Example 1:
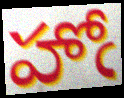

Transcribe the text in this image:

హోఁ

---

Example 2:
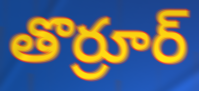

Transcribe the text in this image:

తొర్రూర్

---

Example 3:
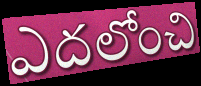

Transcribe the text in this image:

ఎదలోంచి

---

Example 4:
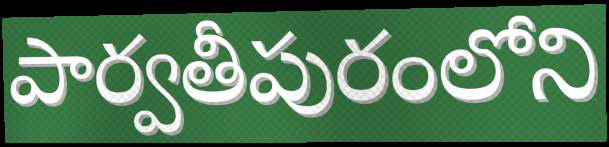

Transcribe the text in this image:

పార్వతీపురంలోని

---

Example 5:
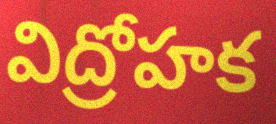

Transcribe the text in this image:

విద్రోహక